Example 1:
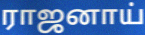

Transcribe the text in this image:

ராஜனாய்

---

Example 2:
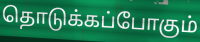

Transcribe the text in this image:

தொடுக்கப்போகும்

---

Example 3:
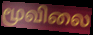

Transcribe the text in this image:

மூவிலை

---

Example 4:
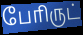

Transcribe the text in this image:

பேரிருட்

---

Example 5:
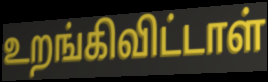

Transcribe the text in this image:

உறங்கிவிட்டாள்